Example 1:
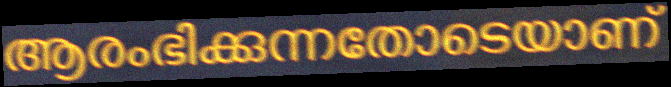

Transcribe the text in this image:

ആരംഭിക്കുന്നതോടെയാണ്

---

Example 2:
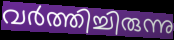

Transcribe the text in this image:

വർത്തിച്ചിരുന്നു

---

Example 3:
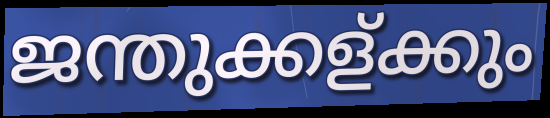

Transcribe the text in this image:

ജന്തുക്കള്ക്കും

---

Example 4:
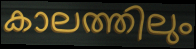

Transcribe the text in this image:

കാലത്തിലും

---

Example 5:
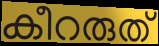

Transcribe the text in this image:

കീറരുത്